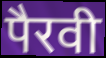
पैरवी